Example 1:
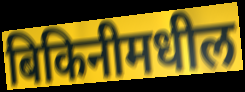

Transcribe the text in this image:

बिकिनीमधील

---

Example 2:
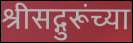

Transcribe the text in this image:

श्रीसद्गुरूंच्या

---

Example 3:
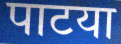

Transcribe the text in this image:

पाटया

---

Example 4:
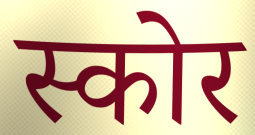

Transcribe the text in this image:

स्कोर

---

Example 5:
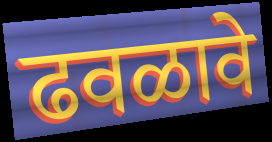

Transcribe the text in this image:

ढवळावे